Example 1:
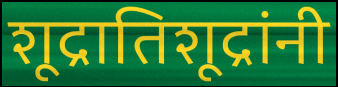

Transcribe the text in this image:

शूद्रातिशूद्रांनी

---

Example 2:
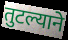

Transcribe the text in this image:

तुटल्याने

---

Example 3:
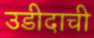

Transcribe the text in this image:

उडीदाची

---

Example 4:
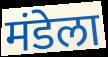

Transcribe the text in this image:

मंडेला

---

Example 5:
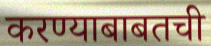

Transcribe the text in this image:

करण्याबाबतची